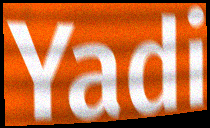
Yadi